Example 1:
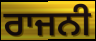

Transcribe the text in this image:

ਰਾਜਨੀ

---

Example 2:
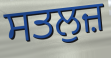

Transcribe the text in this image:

ਸਤਲੁਜ਼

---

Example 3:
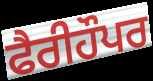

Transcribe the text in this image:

ਫੈਰੀਹੌਪਰ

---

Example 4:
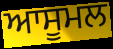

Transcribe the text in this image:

ਆਸੂਮਲ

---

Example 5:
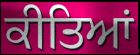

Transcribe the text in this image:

ਕੀਤਿਆਂ